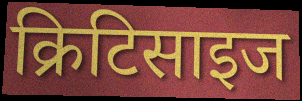
क्रिटिसाइज